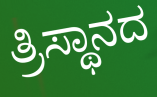
ತ್ರಿಸ್ಥಾನದ